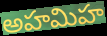
అహమిహ